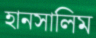
হানসালিম